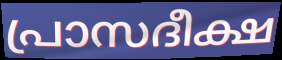
പ്രാസദീക്ഷ